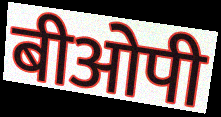
बीओपी